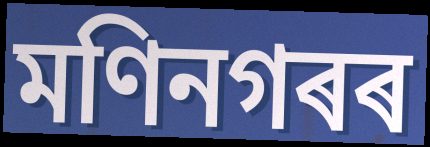
মণিনগৰৰ